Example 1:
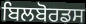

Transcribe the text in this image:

ਬਿਲਬੋਰਡਸ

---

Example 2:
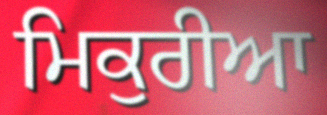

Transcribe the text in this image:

ਮਿਕੁਰੀਆ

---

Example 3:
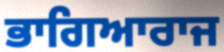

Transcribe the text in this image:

ਭਾਗਿਆਰਾਜ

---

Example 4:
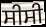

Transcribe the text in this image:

ਸੀਸੀ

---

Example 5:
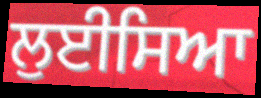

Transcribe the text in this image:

ਲੁਈਸਿਆ